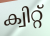
ക്വിറ്റ്